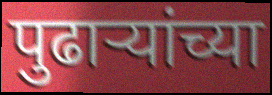
पुढाऱ्यांच्या